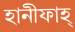
হানীফাহ্